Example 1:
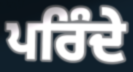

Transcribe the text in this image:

ਪਰਿੰਦੇ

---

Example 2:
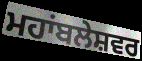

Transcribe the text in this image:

ਮਹਾਂਬਲੇਸ਼ਵਰ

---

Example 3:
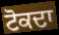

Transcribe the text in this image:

ਟੋਕਦਾ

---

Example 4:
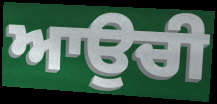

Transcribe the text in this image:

ਆਉਚੀ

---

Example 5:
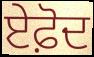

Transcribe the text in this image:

ਏਫ਼ੋਦ